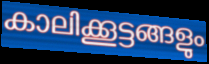
കാലിക്കൂട്ടങ്ങളും